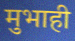
मुभाही